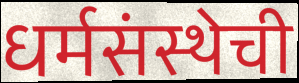
धर्मसंस्थेची